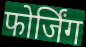
फोर्जिंग